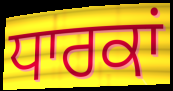
ਧਾਰਕਾਂ